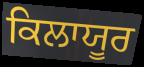
ਕਿਲਾਯੂਰ